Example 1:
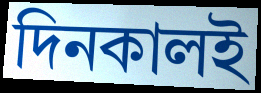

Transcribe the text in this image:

দিনকালই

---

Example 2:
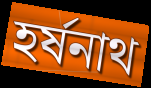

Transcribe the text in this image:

হর্ষনাথ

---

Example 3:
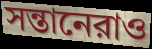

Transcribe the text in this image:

সন্তানেরাও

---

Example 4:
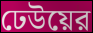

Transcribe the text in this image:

ঢেউয়ের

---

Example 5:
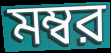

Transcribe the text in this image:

মম্বর